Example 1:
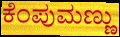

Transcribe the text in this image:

ಕೆಂಪುಮಣ್ಣು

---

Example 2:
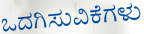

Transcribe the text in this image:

ಒದಗಿಸುವಿಕೆಗಳು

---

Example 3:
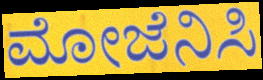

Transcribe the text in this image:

ಮೋಜೆನಿಸಿ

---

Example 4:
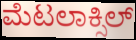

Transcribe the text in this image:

ಮೆಟಲಾಕ್ಸಿಲ್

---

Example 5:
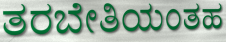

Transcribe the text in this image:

ತರಬೇತಿಯಂತಹ